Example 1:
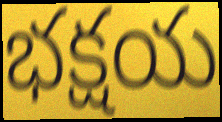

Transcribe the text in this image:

భక్షయ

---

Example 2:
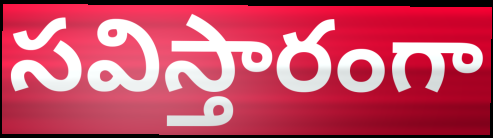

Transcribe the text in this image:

సవిస్తారంగా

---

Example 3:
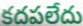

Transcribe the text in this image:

కదపలేదు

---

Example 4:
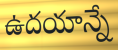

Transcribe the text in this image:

ఉదయాన్నే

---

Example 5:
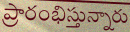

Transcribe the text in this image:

ప్రారంభిస్తున్నారు